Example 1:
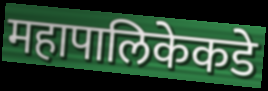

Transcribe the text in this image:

महापालिकेकडे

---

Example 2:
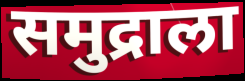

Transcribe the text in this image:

समुद्राला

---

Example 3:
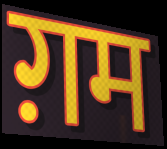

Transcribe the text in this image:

ग़म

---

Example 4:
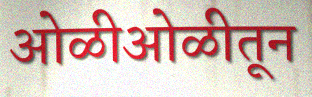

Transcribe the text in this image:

ओळीओळीतून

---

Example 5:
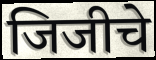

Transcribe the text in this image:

जिजीचे